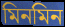
মিনমিন